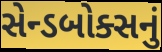
સેન્ડબોક્સનું